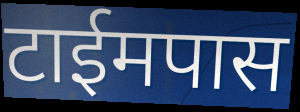
टाईमपास